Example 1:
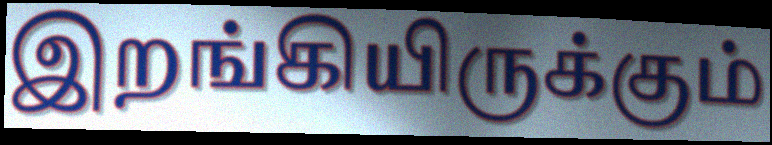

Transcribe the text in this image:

இறங்கியிருக்கும்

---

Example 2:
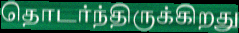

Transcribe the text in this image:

தொடர்ந்திருக்கிறது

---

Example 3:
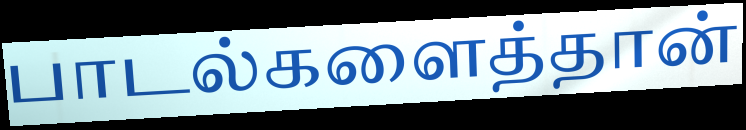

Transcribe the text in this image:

பாடல்களைத்தான்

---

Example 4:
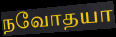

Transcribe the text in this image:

நவோதயா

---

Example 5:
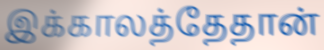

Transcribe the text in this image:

இக்காலத்தேதான்